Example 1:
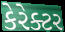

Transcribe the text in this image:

કેરેક્ટર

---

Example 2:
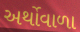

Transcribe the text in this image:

અર્થોવાળા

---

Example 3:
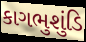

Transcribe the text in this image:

કાગભુશુંડિ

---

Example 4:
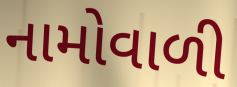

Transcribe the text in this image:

નામોવાળી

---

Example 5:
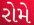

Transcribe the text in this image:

રોમે